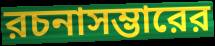
রচনাসম্ভারের